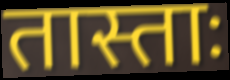
तास्ताः